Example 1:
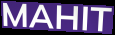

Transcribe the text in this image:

MAHIT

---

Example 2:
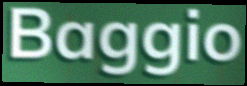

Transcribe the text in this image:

Baggio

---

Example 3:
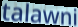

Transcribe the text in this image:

talawni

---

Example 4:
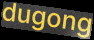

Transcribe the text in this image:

dugong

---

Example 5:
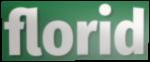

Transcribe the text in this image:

florid